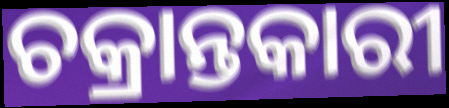
ଚକ୍ରାନ୍ତକାରୀ